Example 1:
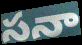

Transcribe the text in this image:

సనా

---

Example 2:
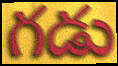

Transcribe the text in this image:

గడు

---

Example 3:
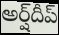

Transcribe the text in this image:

అర్ష్‌దీప్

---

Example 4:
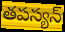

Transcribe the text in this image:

తపస్యన్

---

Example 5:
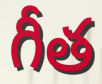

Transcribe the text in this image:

గీత